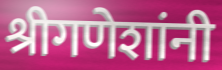
श्रीगणेशांनी